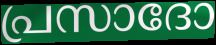
പ്രസാദോ